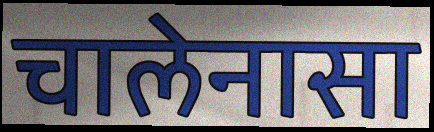
चालेनासा